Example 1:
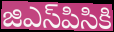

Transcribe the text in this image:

జిఎస్‌పిసికి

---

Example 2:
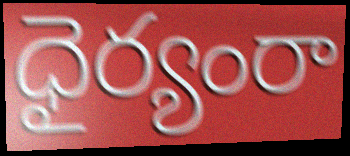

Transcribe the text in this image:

ధైర్యంరా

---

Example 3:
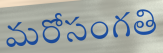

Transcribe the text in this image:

మరోసంగతి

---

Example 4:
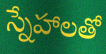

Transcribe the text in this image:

స్నేహాలతో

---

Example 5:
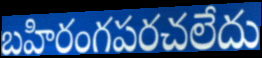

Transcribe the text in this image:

బహిరంగపరచలేదు